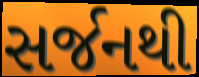
સર્જનથી